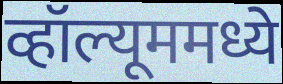
व्हॉल्यूममध्ये